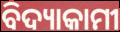
ବିଦ୍ୟାକାମୀ